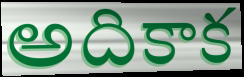
అదికాక